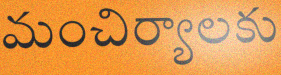
మంచిర్యాలకు